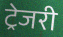
ट्रेजरी